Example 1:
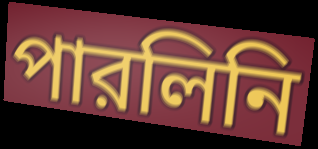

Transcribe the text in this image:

পারলিনি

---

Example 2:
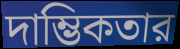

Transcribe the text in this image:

দাম্ভিকতার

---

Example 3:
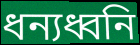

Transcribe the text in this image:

ধন্যধ্বনি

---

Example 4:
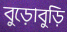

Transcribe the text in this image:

বুড়োবুড়ি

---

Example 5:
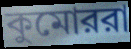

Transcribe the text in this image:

কুমোররা